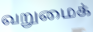
வறுமைக்